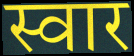
स्वार